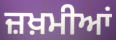
ਜ਼ਖ਼ਮੀਆਂ